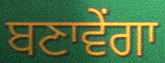
ਬਣਾਵੇਂਗਾ